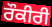
ਰੌਕੀਰੀ